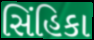
સિંહિકા